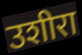
उशीरा